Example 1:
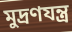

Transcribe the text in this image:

মুদ্ৰণযন্ত্ৰ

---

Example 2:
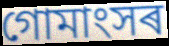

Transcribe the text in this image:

গোমাংসৰ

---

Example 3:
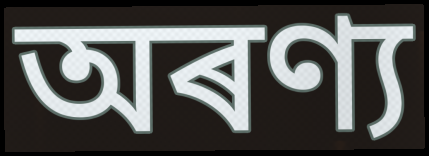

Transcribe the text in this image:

অৰণ্য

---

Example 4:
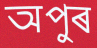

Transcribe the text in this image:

অপুৰ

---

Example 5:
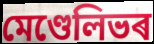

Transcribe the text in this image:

মেণ্ডেলিভৰ